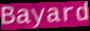
Bayard